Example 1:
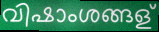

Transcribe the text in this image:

വിഷാംശങ്ങള്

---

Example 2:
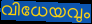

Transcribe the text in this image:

വിധേയവും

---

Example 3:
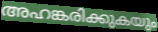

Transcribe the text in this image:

അഹങ്കരിക്കുകയും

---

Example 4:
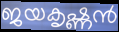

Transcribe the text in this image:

ജയകൃഷ്ണൻ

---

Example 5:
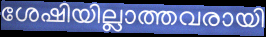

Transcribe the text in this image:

ശേഷിയില്ലാത്തവരായി